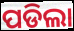
ପଡିଲା